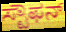
ಸ್ಟೌಫನ್